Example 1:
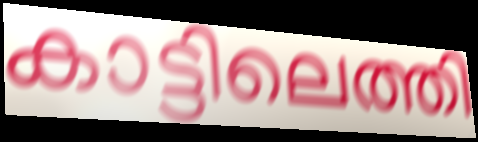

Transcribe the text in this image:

കാട്ടിലെത്തി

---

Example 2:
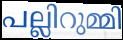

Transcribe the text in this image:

പല്ലിറുമ്മി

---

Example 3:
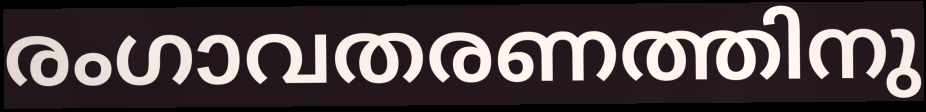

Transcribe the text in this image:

രംഗാവതരണത്തിനു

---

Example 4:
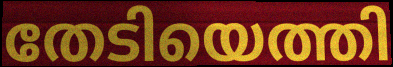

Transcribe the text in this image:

തേടിയെത്തി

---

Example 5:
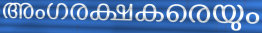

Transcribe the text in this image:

അംഗരക്ഷകരെയും